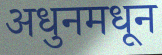
अधुनमधून